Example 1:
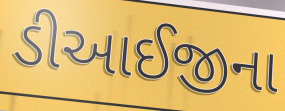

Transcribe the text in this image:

ડીઆઈજીના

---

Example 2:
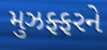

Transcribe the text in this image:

મુઝફ્ફરને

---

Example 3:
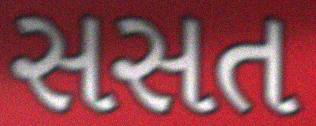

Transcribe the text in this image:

સસત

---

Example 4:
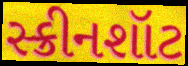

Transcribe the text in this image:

સ્ક્રીનશૉટ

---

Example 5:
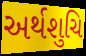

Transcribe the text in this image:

અર્થશુચિ